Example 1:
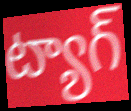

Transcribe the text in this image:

ట్యాగ్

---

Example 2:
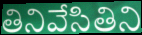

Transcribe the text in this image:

తినివేసితిని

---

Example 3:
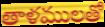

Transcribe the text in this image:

తాళములతో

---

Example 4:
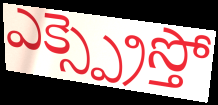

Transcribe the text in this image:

ఎక్స్ప్రెస్తో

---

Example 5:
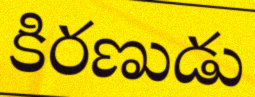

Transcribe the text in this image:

కిరణుడు